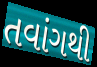
તવાંગથી